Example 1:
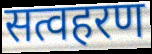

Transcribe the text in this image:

सत्वहरण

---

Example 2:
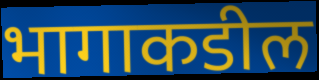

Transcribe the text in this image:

भागाकडील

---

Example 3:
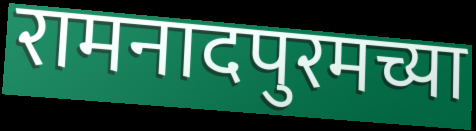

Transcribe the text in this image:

रामनादपुरमच्या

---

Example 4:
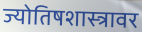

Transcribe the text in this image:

ज्योतिषशास्त्रावर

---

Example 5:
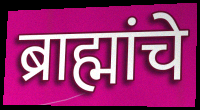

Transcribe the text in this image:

ब्राह्मांचे